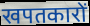
खपतकारों